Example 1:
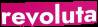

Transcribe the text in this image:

revoluta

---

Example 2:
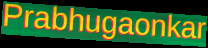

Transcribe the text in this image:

Prabhugaonkar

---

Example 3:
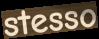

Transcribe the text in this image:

stesso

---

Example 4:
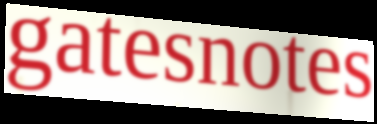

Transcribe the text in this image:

gatesnotes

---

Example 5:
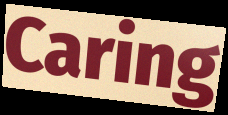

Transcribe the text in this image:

Caring